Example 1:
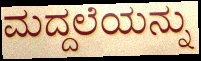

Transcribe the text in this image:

ಮದ್ದಲೆಯನ್ನು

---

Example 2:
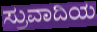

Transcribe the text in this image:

ಸ್ರುವಾದಿಯ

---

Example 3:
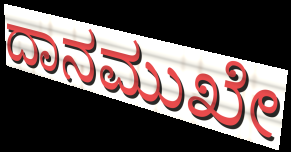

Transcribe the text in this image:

ದಾನಮುಖೇ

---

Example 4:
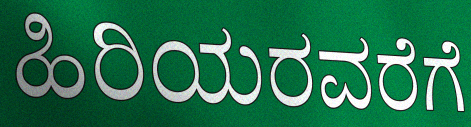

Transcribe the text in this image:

ಹಿರಿಯರವರೆಗೆ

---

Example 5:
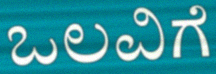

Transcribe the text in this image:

ಒಲವಿಗೆ